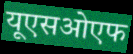
यूएसओएफ